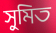
সুমিত